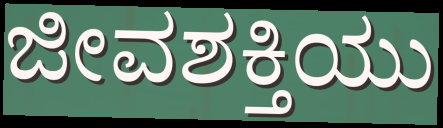
ಜೀವಶಕ್ತಿಯು